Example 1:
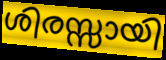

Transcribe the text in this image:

ശിരസ്സായി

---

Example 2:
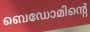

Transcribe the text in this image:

ബെഡോമിന്റെ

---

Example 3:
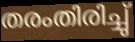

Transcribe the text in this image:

തരംതിരിച്ചു്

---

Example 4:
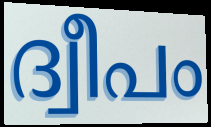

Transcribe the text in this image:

ദ്വീപം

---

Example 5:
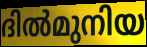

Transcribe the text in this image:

ദിൽമുനിയ